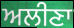
ਅਲੀਣਾ